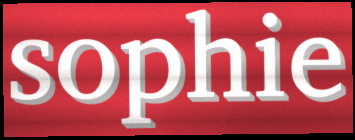
sophie